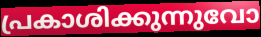
പ്രകാശിക്കുന്നുവോ